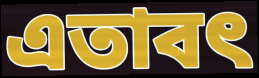
এতাবৎ